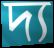
দ্য